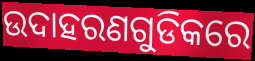
ଉଦାହରଣଗୁଡିକରେ